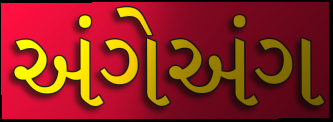
અંગેઅંગ